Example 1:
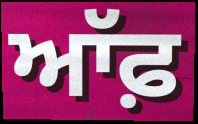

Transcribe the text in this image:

ਆੱਫ਼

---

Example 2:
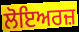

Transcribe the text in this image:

ਲੋਇਅਰਜ਼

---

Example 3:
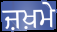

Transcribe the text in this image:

ਜ਼ਖ਼ਮੇ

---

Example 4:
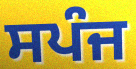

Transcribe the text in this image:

ਸਪੰਜ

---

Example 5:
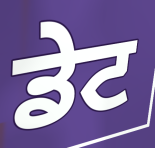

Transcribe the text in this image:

ਡੇਟ